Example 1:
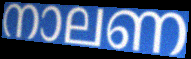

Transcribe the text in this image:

നാലണ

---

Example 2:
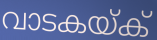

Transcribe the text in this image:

വാടകയ്ക്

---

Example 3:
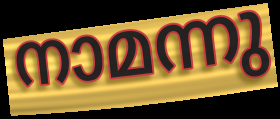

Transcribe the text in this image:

നാമന്നു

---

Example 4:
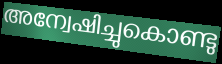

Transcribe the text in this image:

അന്വേഷിച്ചുകൊണ്ടു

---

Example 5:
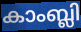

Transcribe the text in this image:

കാംബ്ലി